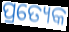
ପ୍ରତ୍ଯେକ